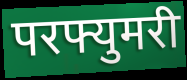
परफ्युमरी